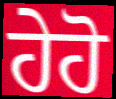
ਹੇਹੋ